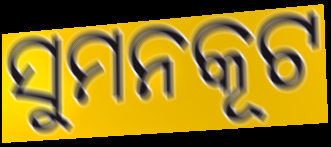
ସୁମନକୂଟ